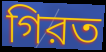
গিরত